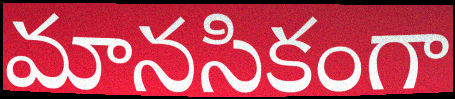
మానసికంగా